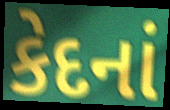
કેદનાં